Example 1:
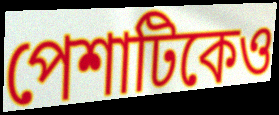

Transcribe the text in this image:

পেশাটিকেও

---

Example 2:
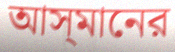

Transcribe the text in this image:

আস্‌মানের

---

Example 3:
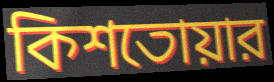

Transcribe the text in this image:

কিশতোয়ার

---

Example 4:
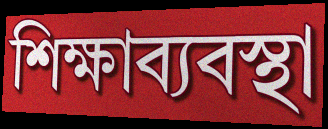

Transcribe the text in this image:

শিক্ষাব্যবস্থা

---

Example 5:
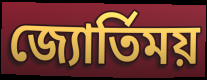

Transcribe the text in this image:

জ্যোর্তিময়